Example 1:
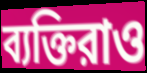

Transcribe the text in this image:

ব্যক্তিরাও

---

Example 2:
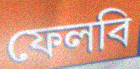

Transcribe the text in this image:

ফেলবি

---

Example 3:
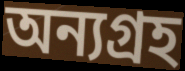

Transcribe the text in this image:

অন্যগ্রহ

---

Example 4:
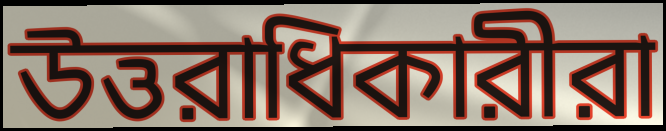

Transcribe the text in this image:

উত্তরাধিকারীরা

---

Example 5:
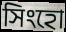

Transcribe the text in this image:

সিংহো